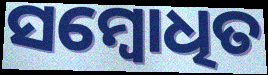
ସମ୍ବୋଧିତ